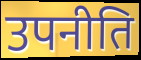
उपनीति